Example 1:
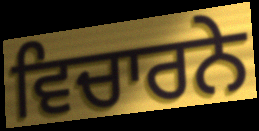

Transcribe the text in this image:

ਵਿਚਾਰਨੇ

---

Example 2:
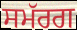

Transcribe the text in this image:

ਸਮੱਰਗ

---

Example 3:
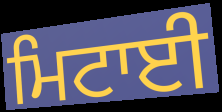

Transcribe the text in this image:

ਮਿਟਾਈ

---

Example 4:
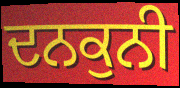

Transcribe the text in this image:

ਦਨਕੁਨੀ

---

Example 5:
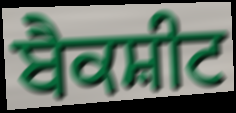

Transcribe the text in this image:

ਬੈਕਸ਼ੀਟ